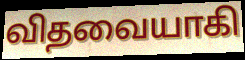
விதவையாகி